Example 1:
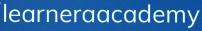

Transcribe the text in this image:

learneraacademy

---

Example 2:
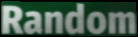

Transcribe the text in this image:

Random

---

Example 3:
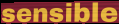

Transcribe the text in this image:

sensible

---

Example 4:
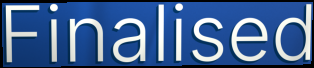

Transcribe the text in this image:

Finalised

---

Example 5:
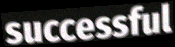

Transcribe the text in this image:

successful